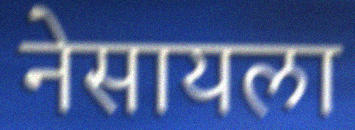
नेसायला